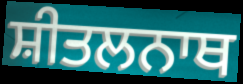
ਸ਼ੀਤਲਨਾਥ